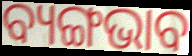
ବ୍ୟଙ୍ଗଭାବ